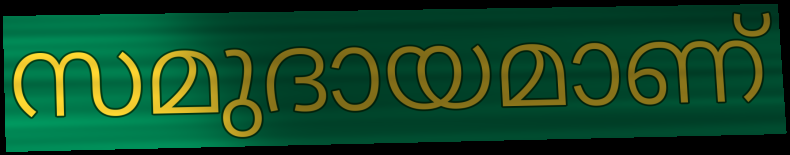
സമുദായമാണ്